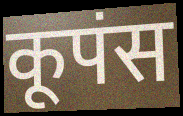
कूपंस